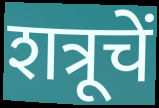
शत्रूचें